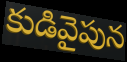
కుడివైపున